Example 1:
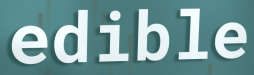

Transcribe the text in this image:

edible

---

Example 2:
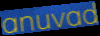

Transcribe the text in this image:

anuvad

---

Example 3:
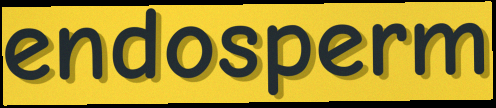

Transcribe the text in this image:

endosperm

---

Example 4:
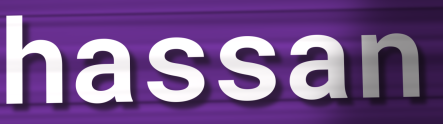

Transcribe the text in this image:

hassan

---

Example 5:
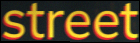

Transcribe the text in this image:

street